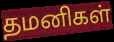
தமனிகள்